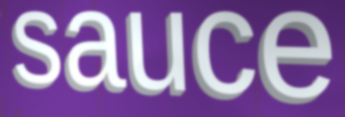
sauce